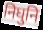
निघुनि